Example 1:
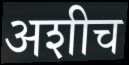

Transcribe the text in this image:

अशीच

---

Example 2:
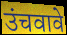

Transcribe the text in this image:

उंचवावे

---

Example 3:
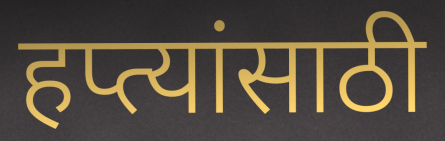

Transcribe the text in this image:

हप्त्यांसाठी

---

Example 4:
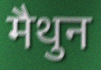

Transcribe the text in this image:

मैथुन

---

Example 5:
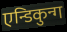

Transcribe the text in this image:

एन्डिकुन्ग